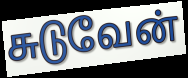
சுடுவேன்